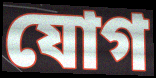
যোগ